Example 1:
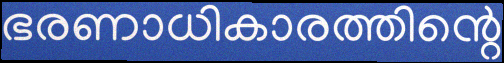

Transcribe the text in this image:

ഭരണാധികാരത്തിന്റെ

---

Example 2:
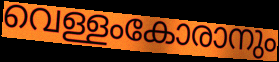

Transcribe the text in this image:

വെള്ളംകോരാനും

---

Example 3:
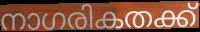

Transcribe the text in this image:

നാഗരികതക്ക്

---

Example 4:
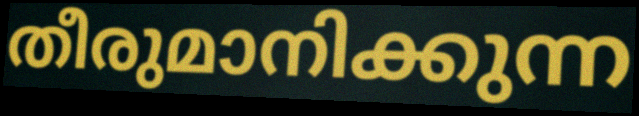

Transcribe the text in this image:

തീരുമാനിക്കുന്ന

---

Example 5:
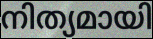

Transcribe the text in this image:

നിത്യമായി